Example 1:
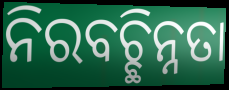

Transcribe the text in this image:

ନିରବଚ୍ଛିନ୍ନତା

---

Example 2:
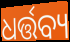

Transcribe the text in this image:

ଧର୍ତ୍ତବ୍ୟ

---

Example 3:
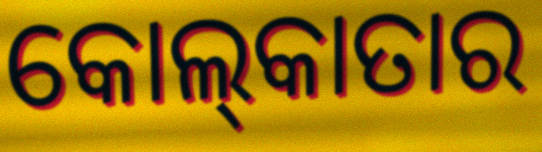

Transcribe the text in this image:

କୋଲ୍‍କାତାର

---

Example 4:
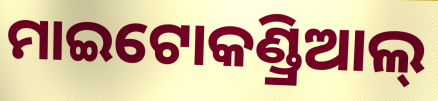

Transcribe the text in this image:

ମାଇଟୋକଣ୍ଡ୍ରିଆଲ୍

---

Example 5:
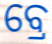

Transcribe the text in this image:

ବ୍ରେ